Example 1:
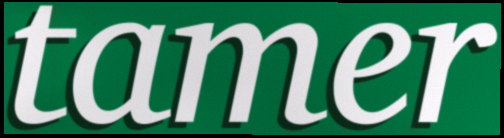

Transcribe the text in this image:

tamer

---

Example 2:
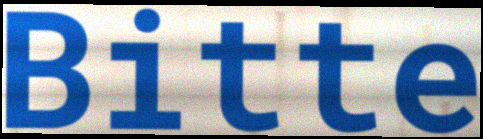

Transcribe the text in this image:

Bitte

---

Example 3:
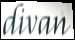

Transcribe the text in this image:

divan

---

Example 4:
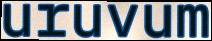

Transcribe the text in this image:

uruvum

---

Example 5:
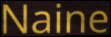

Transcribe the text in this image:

Naine